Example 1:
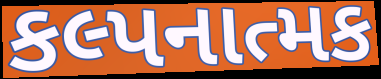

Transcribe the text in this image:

કલ્પનાત્મક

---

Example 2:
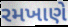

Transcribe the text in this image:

રમખાણે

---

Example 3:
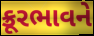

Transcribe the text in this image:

ક્રૂરભાવને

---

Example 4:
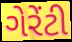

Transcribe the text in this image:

ગેરેંટી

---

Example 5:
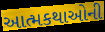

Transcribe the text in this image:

આત્મકથાઓની